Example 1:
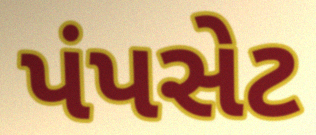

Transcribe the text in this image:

પંપસેટ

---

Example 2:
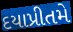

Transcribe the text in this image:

દયાપ્રીતમે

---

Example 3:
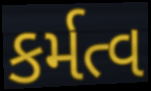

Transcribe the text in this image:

કર્મત્વ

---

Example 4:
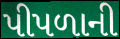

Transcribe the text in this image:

પીપળાની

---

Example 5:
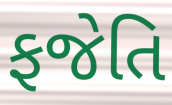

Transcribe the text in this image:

ફજેતિ